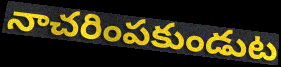
నాచరింపకుండుట